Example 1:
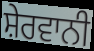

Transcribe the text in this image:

ਸ਼ੇਰਵਾਨੀ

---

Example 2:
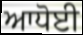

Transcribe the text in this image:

ਆਧੋਈ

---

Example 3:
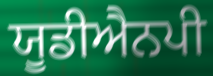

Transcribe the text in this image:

ਯੂਡੀਐਨਪੀ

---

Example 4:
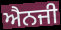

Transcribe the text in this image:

ਐਨਜੀ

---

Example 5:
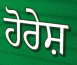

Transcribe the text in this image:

ਹੋਰੇਸ਼